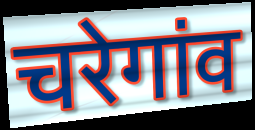
चरेगांव